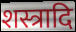
शस्त्रादि